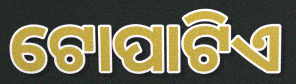
ଟୋପାଟିଏ